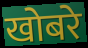
खोबरे